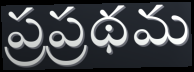
ప్రప్రథమ